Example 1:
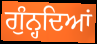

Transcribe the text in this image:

ਗੁੰਨ੍ਹਦਿਆਂ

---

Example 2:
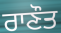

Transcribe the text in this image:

ਰਾਣੌਤ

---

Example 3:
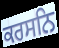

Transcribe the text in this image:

ਕਰਸਨਿ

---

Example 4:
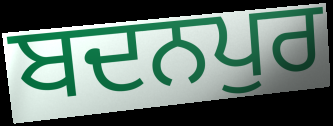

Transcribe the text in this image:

ਬਦਨਪੁਰ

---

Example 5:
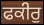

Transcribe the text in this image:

ਫਕੀਰੁ